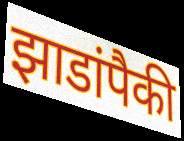
झाडांपैकी